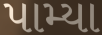
પામ્યા